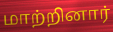
மாற்றினார்